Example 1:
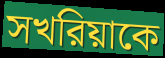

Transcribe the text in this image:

সখরিয়াকে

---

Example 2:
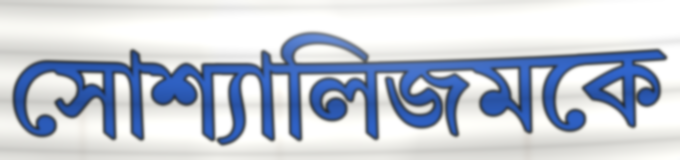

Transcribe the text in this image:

সোশ্যালিজমকে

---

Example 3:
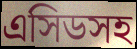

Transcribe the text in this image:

এসিডসহ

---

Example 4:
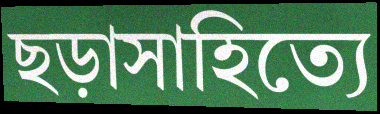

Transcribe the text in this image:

ছড়াসাহিত্যে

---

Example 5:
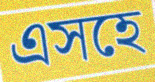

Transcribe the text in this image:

এসহে